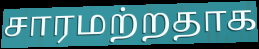
சாரமற்றதாக